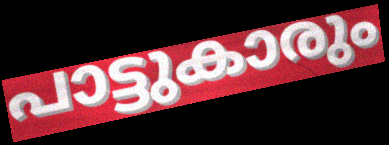
പാട്ടുകാരും